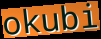
okubi